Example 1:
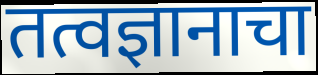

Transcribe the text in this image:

तत्वज्ञानाचा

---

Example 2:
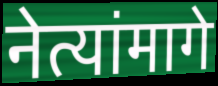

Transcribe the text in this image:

नेत्यांमागे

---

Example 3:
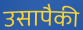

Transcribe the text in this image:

उसापैकी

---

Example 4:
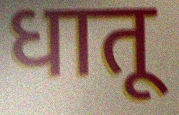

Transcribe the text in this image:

धातू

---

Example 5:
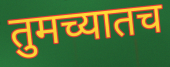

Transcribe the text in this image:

तुमच्यातच